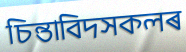
চিন্তাবিদসকলৰ